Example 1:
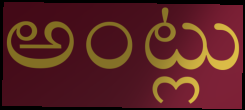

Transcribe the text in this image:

అంట్లు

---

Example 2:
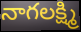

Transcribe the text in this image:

నాగలక్ష్మి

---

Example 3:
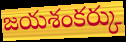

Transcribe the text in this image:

జయశంకర్కు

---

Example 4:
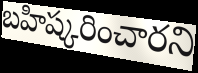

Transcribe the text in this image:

బహిష్కరించారని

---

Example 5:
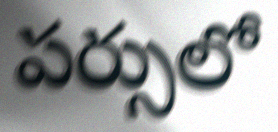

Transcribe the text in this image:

పర్సులో